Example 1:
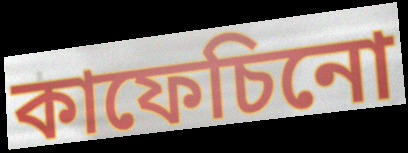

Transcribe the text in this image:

কাফেচিনো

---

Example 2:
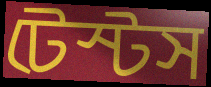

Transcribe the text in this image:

টেস্টস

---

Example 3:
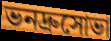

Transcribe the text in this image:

ভনদ্রুসোভা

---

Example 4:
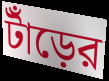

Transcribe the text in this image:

টাঁড়ের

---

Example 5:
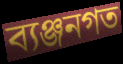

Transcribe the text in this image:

ব্যঞ্জনগত